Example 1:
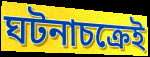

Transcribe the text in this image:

ঘটনাচক্রেই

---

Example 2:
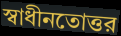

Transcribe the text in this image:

স্বাধীনতোত্তর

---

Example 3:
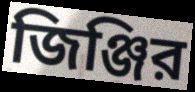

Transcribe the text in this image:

জিঞ্জির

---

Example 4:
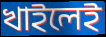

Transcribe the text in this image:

খাইলেই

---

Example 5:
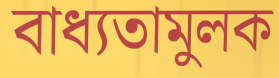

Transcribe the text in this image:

বাধ্যতামুলক